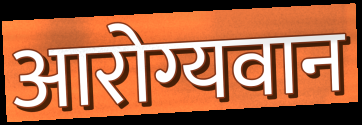
आरोग्यवान